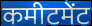
कमीटमेंट